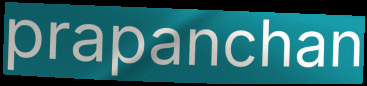
prapanchan